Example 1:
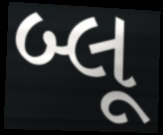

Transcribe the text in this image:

બ્લૂ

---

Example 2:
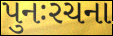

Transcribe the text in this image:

પુનઃરચના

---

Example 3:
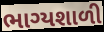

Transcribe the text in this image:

ભાગ્યશાળી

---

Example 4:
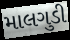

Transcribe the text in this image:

માલગુડી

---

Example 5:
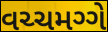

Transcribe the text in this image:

વચ્ચમગ્ગે